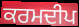
ਕਰਮਦੀਪ